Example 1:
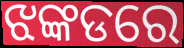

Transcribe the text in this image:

ଝଙ୍କଡରେ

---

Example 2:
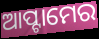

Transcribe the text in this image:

ଆପ୍ଟାମେର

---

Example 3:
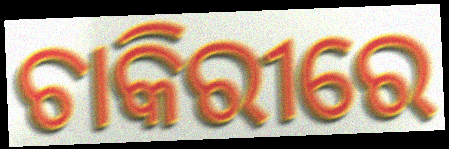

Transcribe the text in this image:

ଚାକିରୀରେ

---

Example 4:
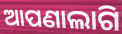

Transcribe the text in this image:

ଆପଣାଲାଗି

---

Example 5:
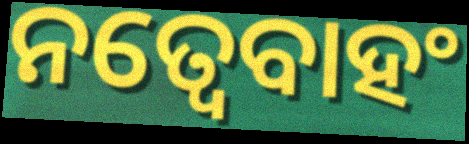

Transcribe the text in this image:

ନତ୍ୱେବାହଂ